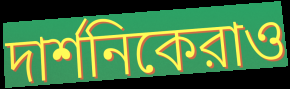
দার্শনিকেরাও